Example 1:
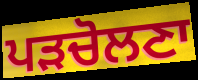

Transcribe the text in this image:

ਪੜਚੋਲਣਾ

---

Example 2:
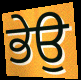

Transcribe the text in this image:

ਭੇਉ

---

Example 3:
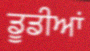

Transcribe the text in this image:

ਡੂਡੀਆਂ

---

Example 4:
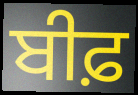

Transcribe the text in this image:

ਬੀਫ਼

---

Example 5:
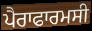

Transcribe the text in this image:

ਪੈਰਾਫਾਰਮਸੀ